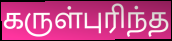
கருள்புரிந்த